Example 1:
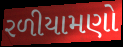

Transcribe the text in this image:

રળીયામણો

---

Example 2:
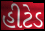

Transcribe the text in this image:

હીટેડ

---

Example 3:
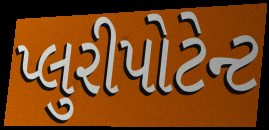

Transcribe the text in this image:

પ્લુરીપોટેન્ટ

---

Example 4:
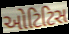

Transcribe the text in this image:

ઓટિટિસ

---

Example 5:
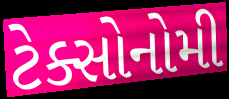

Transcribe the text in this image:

ટેક્સોનોમી